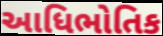
આધિભોતિક